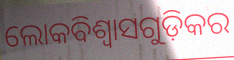
ଲୋକବିଶ୍ଵାସଗୁଡ଼ିକର